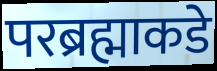
परब्रह्माकडे